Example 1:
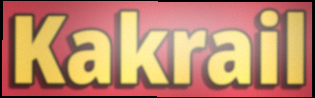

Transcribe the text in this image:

Kakrail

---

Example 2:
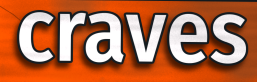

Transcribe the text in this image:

craves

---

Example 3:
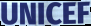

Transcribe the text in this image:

UNICEF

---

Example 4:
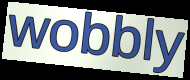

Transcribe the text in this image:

wobbly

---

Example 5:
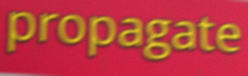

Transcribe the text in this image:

propagate